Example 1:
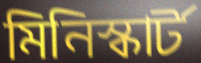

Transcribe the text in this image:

মিনিস্কার্ট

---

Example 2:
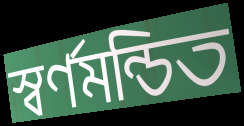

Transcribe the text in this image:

স্বর্ণমন্ডিত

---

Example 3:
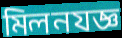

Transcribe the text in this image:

মিলনযজ্ঞ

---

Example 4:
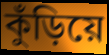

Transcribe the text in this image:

কুঁড়িয়ে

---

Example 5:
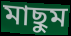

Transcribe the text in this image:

মাছুম